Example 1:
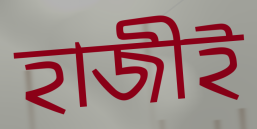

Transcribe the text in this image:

হাজীই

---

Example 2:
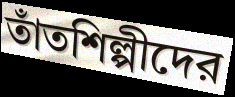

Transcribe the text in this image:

তাঁতশিল্পীদের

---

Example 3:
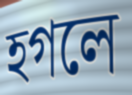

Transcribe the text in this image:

হগলে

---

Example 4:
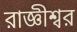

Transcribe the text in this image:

রাজ্ঞীশ্বর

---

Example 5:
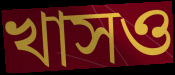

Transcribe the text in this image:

খাসও